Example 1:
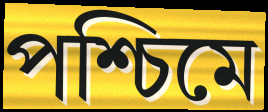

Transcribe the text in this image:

পশ্চিমে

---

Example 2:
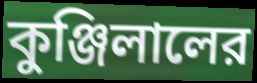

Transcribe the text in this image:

কুঞ্জিলালের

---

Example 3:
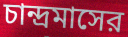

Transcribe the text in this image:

চান্দ্রমাসের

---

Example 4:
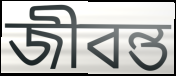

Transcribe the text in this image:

জীবন্ত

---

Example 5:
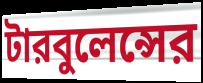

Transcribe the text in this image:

টারবুলেন্সের